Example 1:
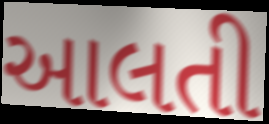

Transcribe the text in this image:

આલતી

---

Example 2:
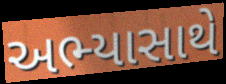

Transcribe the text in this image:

અભ્યાસાથે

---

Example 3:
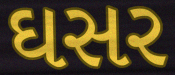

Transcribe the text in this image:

ઘસર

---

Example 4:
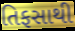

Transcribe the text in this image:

તિફસાથી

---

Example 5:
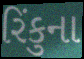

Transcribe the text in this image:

રિંકુના